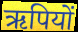
ऋपियों